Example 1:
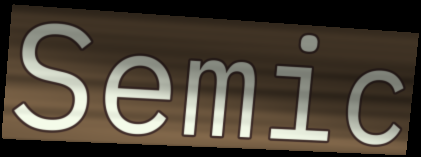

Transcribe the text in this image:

Semic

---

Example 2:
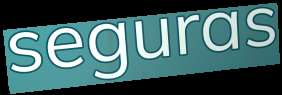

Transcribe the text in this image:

seguras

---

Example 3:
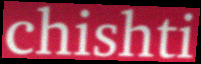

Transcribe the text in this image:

chishti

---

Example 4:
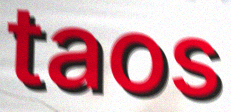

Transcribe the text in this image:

taos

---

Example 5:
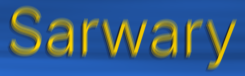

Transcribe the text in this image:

Sarwary